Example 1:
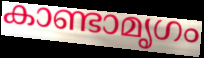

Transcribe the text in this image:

കാണ്ടാമൃഗം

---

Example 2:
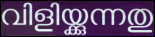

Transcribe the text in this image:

വിളിയ്ക്കുന്നതു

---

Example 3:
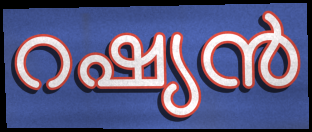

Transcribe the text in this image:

റഷ്യൻ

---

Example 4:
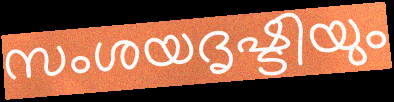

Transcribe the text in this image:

സംശയദൃഷ്ടിയും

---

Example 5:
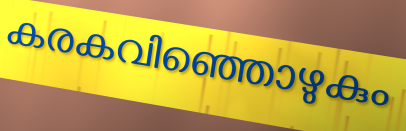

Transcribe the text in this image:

കരകവിഞ്ഞൊഴുകും